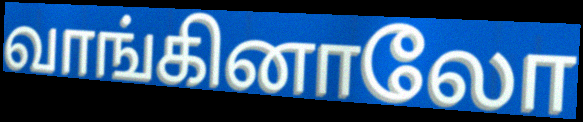
வாங்கினாலோ